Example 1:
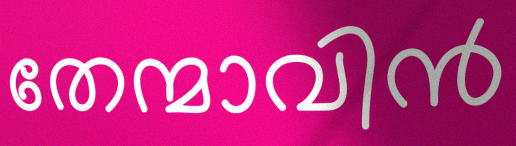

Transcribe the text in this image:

തേന്മാവിൻ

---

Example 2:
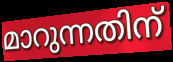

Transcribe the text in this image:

മാറുന്നതിന്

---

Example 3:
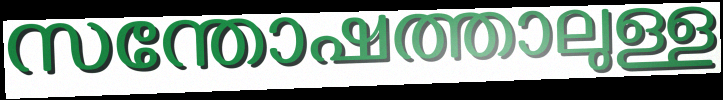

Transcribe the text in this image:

സന്തോഷത്താലുള്ള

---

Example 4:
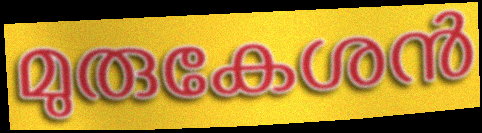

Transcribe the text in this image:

മുരുകേശൻ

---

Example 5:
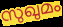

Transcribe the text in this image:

സുഖുമം